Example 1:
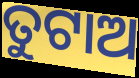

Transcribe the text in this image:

ତୁଟାଅ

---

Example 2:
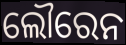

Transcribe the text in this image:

ଲୌରେନ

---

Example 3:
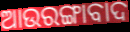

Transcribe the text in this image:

ଆଉରଙ୍ଗାବାଦ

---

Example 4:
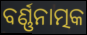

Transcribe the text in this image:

ବର୍ଣ୍ଣନାତ୍ମକ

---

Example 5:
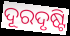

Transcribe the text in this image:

ଦୂରଦୃଷ୍ଟି